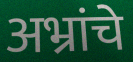
अभ्रांचे